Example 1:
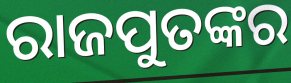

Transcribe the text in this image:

ରାଜପୁତଙ୍କର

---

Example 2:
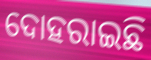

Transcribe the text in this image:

ଦୋହରାଇଛି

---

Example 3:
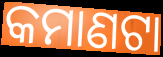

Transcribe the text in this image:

କମାଣଟା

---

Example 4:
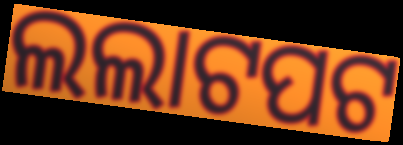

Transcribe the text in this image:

ଲଲାଟପଟ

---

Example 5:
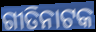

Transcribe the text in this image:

ଗୀତିନାଟକ